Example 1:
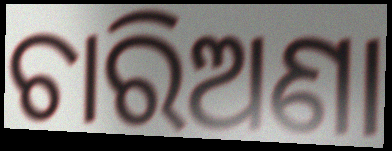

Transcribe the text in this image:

ଚାରିଅଣା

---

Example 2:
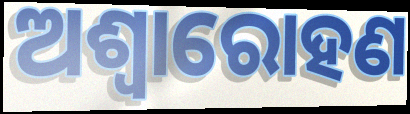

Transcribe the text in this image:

ଅଶ୍ୱାରୋହଣ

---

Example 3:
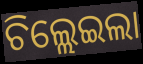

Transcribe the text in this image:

ଚିଲ୍ଲେଇଲା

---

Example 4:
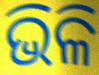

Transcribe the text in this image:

ଭିଳି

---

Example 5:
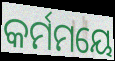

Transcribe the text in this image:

କର୍ମମୟେ